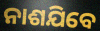
ନାଶଯିବେ